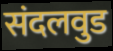
संदलवुड